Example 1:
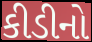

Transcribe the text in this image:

કીડીનો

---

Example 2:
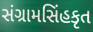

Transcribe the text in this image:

સંગ્રામસિંહકૃત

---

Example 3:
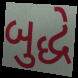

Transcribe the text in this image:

બુદ્ધે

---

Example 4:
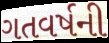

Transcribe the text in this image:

ગતવર્ષની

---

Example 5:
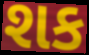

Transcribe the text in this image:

શક